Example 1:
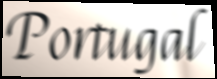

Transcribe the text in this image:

Portugal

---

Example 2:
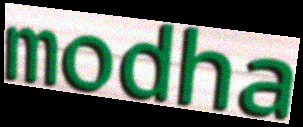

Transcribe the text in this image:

modha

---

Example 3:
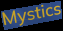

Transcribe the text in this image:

Mystics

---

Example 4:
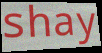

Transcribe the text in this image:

shay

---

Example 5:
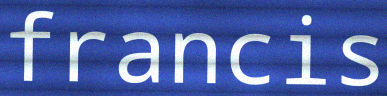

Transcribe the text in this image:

francis